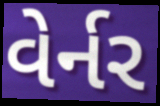
વેર્નર